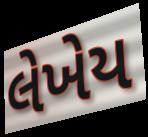
લેખેય